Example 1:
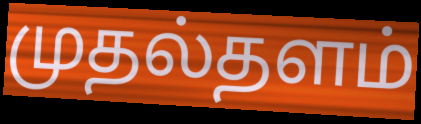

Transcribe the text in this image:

முதல்தளம்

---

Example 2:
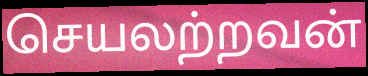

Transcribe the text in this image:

செயலற்றவன்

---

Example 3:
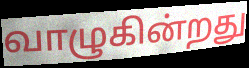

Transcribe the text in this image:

வாழுகின்றது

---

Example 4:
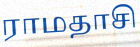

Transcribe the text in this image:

ராமதாசி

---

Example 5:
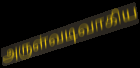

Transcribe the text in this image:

அருள்வடிவாகிய